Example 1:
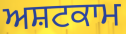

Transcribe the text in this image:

ਅਸ਼ਟਕਾਮ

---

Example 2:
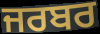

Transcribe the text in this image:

ਜਰਬਰ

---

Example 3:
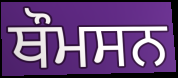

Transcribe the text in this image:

ਥੌਮਸਨ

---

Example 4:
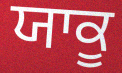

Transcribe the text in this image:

ਯਾਕੂ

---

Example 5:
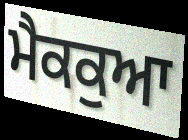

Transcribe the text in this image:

ਮੈਕਕੁਆ